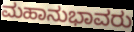
ಮಹಾನುಭಾವರು